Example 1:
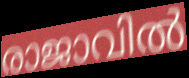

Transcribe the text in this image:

രാജാവിൽ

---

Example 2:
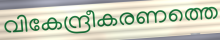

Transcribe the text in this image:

വികേന്ദ്രീകരണത്തെ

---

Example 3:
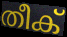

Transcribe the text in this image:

തീക്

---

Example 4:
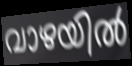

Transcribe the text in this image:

വാഴയിൽ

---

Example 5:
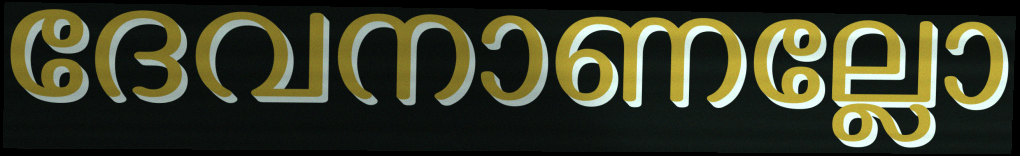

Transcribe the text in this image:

ദേവനാണല്ലോ